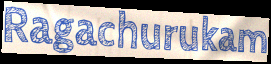
Ragachurukam